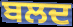
ਬਲਦ